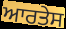
ਆਰਤੇਸ